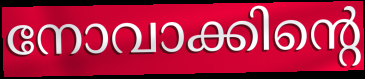
നോവാക്കിന്റെ